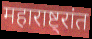
महाराष्ट्रांत